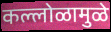
कल्लोळामुळे